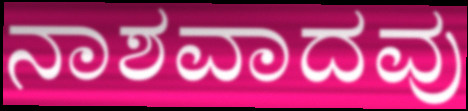
ನಾಶವಾದವು